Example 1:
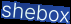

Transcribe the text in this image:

shebox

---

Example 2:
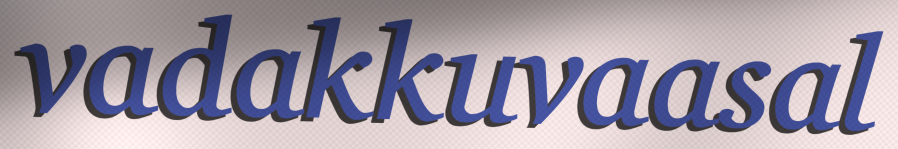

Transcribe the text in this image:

vadakkuvaasal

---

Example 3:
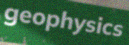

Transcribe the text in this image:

geophysics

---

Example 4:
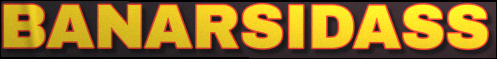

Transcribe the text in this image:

BANARSIDASS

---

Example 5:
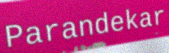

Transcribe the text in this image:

Parandekar